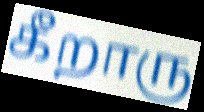
கீறாரு